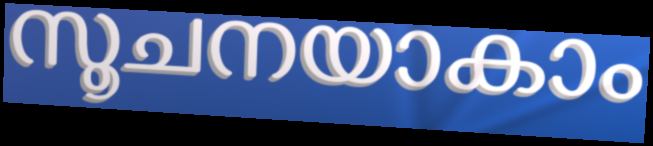
സൂചനയാകാം